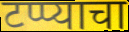
टप्प्याचा